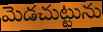
మెడచుట్టును